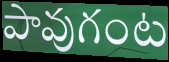
పావుగంట